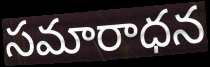
సమారాధన